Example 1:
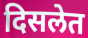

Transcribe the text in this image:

दिसलेत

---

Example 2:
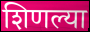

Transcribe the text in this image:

शिणल्या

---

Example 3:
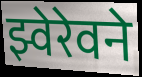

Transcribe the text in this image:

झ्वेरेवने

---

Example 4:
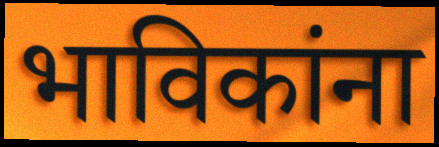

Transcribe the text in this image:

भाविकांना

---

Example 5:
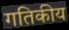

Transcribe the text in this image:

गतिकीय